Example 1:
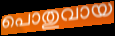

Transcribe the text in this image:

പൊതുവായ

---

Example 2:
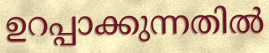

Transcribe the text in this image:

ഉറപ്പാക്കുന്നതിൽ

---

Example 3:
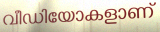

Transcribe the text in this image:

വീഡിയോകളാണ്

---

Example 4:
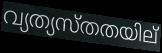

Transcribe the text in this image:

വ്യത്യസ്തതയില്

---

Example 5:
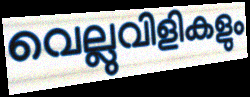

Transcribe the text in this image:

വെല്ലുവിളികളും